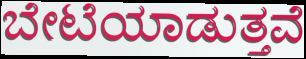
ಬೇಟೆಯಾಡುತ್ತವೆ